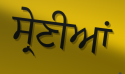
ਸ੍ਰੇਣੀਆਂ